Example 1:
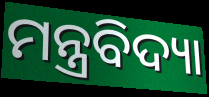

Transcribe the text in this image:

ମନ୍ତ୍ରବିଦ୍ୟା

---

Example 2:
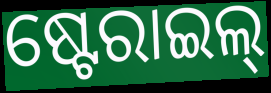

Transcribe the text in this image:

ଷ୍ଟେରାଇଲ୍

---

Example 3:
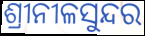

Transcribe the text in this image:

ଶ୍ରୀନୀଳସୁନ୍ଦର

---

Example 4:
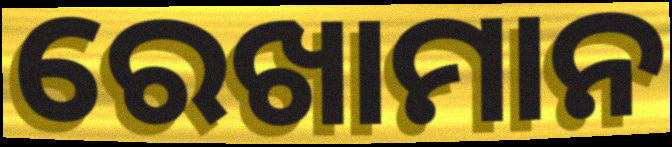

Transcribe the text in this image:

ରେଖାମାନ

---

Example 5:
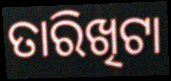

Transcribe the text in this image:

ତାରିଖିଟା